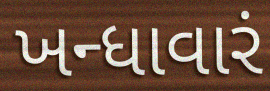
ખન્ધાવારં